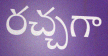
రచ్చగా